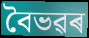
বৈভৱৰ